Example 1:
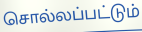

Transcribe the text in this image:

சொல்லப்பட்டும்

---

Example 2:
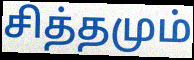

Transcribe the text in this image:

சித்தமும்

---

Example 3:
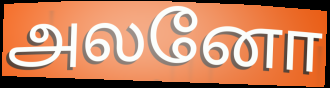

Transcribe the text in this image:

அலனோ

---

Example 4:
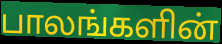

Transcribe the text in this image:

பாலங்களின்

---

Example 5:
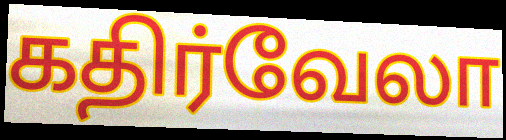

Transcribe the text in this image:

கதிர்வேலா